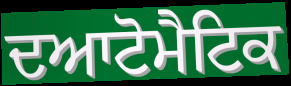
ਦਆਟੋਮੈਟਿਕ